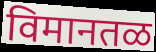
विमानतळ